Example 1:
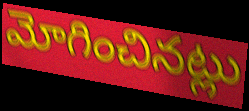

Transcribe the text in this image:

మోగించినట్లు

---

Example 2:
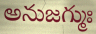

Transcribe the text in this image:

అనుజగ్ముః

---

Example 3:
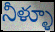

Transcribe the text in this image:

నీళ్ళూ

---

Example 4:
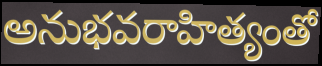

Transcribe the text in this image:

అనుభవరాహిత్యంతో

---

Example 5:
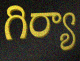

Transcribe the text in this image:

గిర్యా